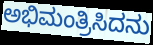
ಅಭಿಮಂತ್ರಿಸಿದನು